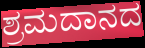
ಶ್ರಮದಾನದ